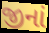
જીનાં